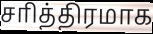
சரித்திரமாக